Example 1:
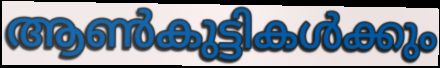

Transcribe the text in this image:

ആൺകുട്ടികൾക്കും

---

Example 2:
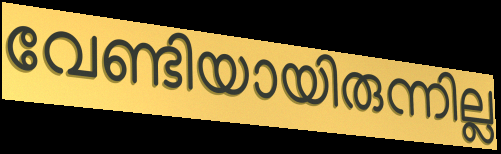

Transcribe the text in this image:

വേണ്ടിയായിരുന്നില്ല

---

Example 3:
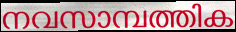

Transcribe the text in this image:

നവസാമ്പത്തിക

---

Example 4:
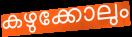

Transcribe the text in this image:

കഴുക്കോലും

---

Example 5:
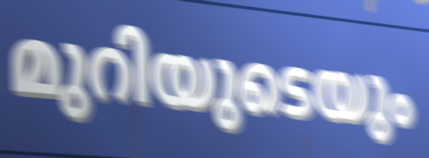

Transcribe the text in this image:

മുറിയുടെയും